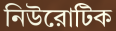
নিউরোটিক